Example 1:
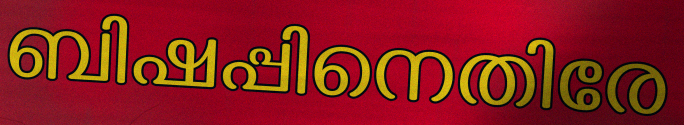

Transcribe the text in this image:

ബിഷപ്പിനെതിരേ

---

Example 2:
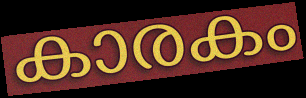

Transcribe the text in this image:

കാരകം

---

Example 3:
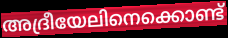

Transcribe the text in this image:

അദ്രീയേലിനെക്കൊണ്ട്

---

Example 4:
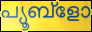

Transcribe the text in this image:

പ്യൂബ്ളോ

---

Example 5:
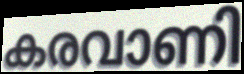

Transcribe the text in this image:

കരവാണി